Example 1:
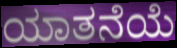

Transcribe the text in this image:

ಯಾತನೆಯೆ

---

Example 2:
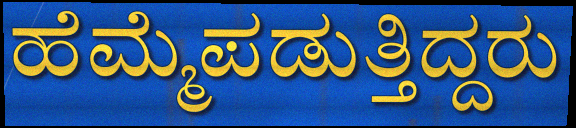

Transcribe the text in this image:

ಹೆಮ್ಮೆಪಡುತ್ತಿದ್ದರು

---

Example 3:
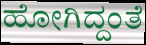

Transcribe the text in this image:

ಹೋಗಿದ್ದಂತೆ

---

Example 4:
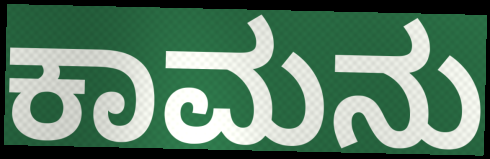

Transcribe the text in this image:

ಕಾಮನು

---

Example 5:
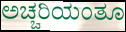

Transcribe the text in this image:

ಅಚ್ಚರಿಯಂತೂ